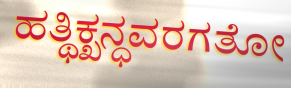
ಹತ್ಥಿಕ್ಖನ್ಧವರಗತೋ